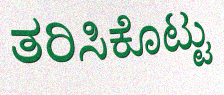
ತರಿಸಿಕೊಟ್ಟು